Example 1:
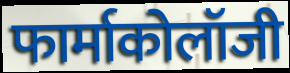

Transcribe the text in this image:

फार्माकोलॉजी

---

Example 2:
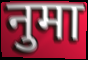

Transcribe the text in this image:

नुमा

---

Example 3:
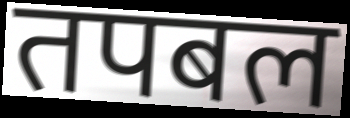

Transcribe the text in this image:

तपबल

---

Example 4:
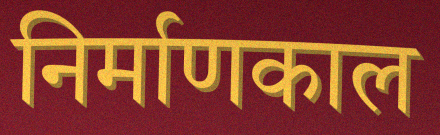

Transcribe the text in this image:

निर्माणकाल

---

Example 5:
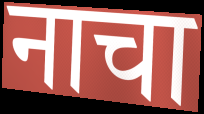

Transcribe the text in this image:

नाचा